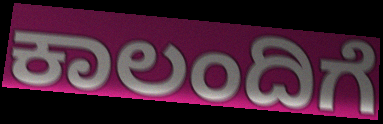
ಕಾಲಂದಿಗೆ